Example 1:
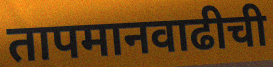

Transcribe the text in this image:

तापमानवाढीची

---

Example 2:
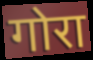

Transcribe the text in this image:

गोरा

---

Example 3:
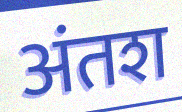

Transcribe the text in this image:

अंतश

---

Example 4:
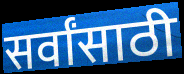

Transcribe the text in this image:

सर्वांसाठी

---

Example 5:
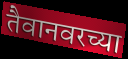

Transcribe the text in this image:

तैवानवरच्या